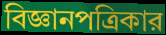
বিজ্ঞানপত্রিকার